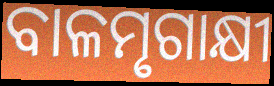
ବାଳମୃଗାକ୍ଷୀ